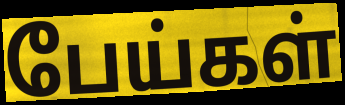
பேய்கள்